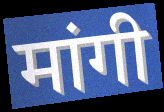
मांगी